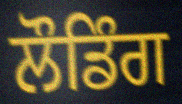
ਲੌਡਿੰਗ